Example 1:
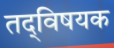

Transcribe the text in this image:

तद्‌विषयक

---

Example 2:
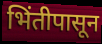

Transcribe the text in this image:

भिंतीपासून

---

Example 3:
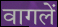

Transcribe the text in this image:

वागलें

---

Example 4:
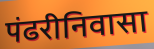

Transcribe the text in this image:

पंढरीनिवासा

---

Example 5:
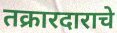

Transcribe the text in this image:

तक्रारदाराचे